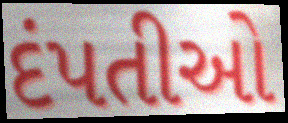
દંપતીઓ